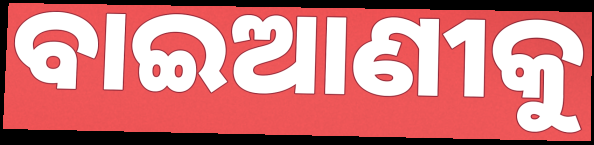
ବାଇଆଣୀକୁ